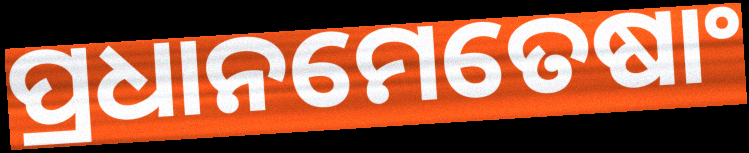
ପ୍ରଧାନମେତେଷାଂ